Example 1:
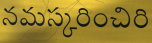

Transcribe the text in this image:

నమస్కరించిరి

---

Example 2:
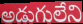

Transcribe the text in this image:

అడుగులేని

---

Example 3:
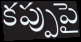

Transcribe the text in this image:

కప్పుపై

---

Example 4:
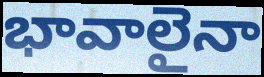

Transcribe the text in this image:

భావాలైనా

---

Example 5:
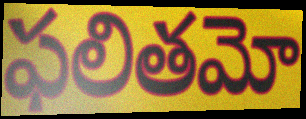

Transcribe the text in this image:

ఫలితమో